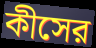
কীসের